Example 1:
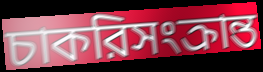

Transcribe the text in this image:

চাকরিসংক্রান্ত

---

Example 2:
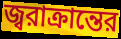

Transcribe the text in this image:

জ্বরাক্রান্তের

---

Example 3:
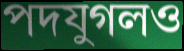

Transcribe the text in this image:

পদযুগলও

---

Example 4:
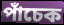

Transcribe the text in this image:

পাঁচেক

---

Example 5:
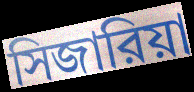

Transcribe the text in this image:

সিজারিয়া